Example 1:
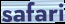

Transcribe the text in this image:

safari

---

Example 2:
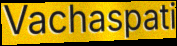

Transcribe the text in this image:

Vachaspati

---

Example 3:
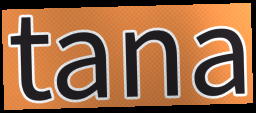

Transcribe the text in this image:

tana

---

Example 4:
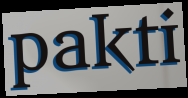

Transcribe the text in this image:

pakti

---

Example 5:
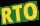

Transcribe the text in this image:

RTO